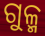
ଗୁଳ୍ମ